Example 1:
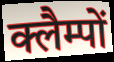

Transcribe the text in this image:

क्लैम्पों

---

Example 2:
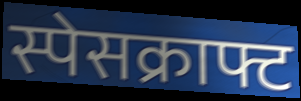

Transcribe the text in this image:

स्‍पेसक्राफ्ट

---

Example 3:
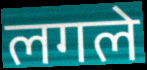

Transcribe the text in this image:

लगले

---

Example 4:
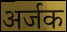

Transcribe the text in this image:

अर्जक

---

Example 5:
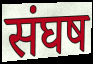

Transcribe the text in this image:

संघष